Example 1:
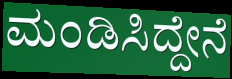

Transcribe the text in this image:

ಮಂಡಿಸಿದ್ದೇನೆ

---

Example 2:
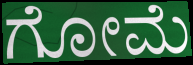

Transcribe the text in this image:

ಗೋಮೆ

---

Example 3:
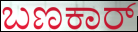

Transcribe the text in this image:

ಬಣಕಾರ್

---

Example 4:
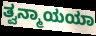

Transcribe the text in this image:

ತ್ವನ್ಮಾಯಯಾ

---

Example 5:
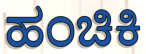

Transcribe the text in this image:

ಹಂಚಿಕಿ